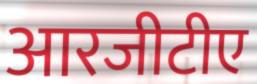
आरजीटीए